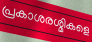
പ്രകാശരശ്മികളെ